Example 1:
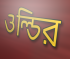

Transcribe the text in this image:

ওল্ডির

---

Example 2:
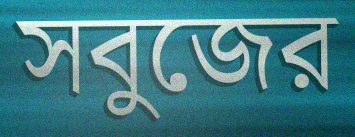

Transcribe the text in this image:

সবুজের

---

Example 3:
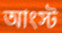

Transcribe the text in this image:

আংস্ট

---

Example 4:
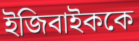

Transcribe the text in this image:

ইজিবাইককে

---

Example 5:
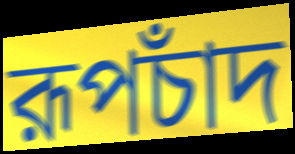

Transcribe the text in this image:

রূপচাঁদ